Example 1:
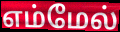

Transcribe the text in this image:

எம்மேல்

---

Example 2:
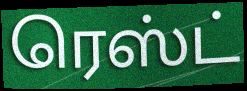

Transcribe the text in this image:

ரெஸ்ட்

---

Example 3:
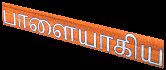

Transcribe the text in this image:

பாளையாகிய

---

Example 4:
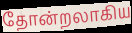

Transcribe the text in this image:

தோன்றலாகிய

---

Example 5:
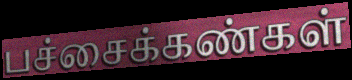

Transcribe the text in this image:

பச்சைக்கண்கள்